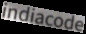
indiacode